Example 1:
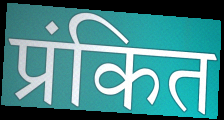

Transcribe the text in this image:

प्रंकित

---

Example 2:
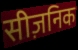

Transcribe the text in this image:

सीज़निक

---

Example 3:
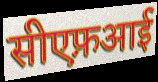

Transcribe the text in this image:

सीएफ़आई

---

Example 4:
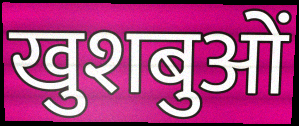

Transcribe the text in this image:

खुशबुओं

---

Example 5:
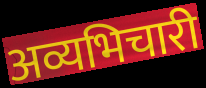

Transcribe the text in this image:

अव्यभिचारी